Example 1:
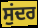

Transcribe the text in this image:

ਸੁਂਦਰ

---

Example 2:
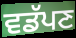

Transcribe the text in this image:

ਵਡੱਪਣ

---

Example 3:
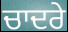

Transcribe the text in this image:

ਚਾਦਰੇ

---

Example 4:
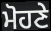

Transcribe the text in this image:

ਮੋਹਣੇ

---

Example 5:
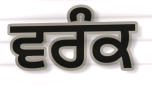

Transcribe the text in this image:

ਵਰੰਕ